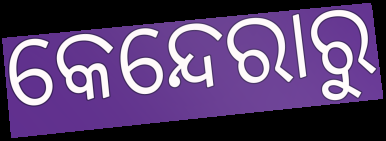
କେନ୍ଦେରାରୁ